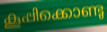
കൂപ്പിക്കൊണ്ടു